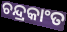
ଚନ୍ଦ୍ରକାଂତ